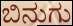
ಬಿನುಗು